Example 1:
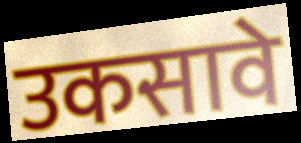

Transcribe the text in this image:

उकसावे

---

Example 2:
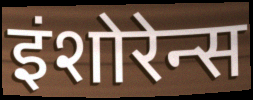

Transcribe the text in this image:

इंशोरेन्स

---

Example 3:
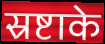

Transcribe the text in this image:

स्रष्टाके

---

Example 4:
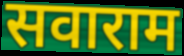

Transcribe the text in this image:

सवाराम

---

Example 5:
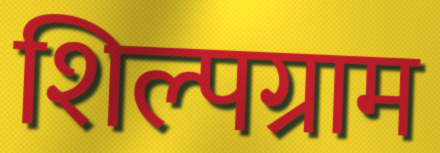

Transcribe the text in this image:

शिल्पग्राम